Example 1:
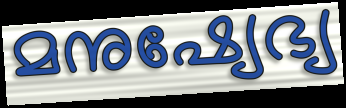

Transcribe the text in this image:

മനുഷ്യേഭ്യ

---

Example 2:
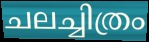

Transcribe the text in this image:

ചലച്ചിത്രം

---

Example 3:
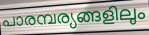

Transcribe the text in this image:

പാരമ്പര്യങ്ങളിലും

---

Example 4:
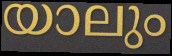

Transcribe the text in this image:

യാലും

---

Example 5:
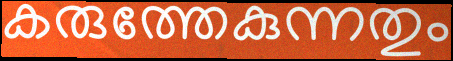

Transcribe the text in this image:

കരുത്തേകുന്നതും